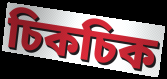
চিকচিক